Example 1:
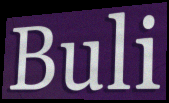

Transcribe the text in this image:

Buli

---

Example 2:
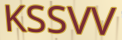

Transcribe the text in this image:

KSSVV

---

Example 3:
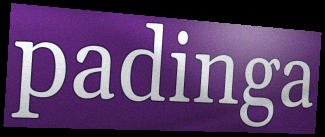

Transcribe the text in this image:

padinga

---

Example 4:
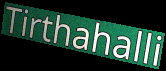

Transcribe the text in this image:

Tirthahalli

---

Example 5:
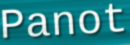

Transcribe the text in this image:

Panot